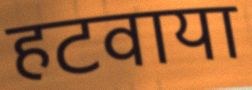
हटवाया